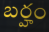
బర్హం